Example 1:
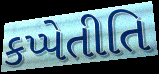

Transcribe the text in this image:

કપ્પેતીતિ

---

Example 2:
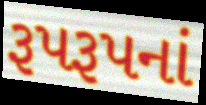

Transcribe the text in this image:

રૂપરૂપનાં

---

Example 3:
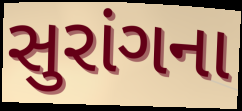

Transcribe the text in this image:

સુરાંગના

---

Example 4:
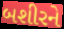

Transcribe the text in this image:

બશીરને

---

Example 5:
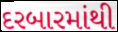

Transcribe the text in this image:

દરબારમાંથી